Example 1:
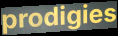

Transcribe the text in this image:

prodigies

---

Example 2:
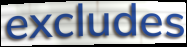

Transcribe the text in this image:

excludes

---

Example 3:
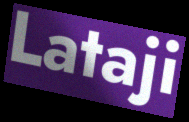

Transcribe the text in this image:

Lataji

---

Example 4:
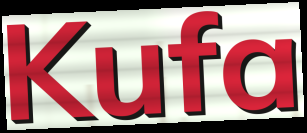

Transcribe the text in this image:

Kufa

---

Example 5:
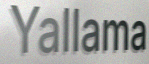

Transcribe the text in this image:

Yallama